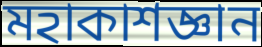
মহাকাশজ্ঞান